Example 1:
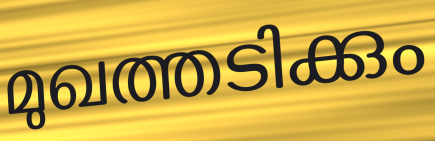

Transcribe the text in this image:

മുഖത്തടിക്കും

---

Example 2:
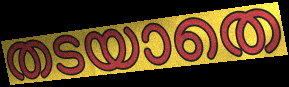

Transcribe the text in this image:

തടയാതെ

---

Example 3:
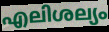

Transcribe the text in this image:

എലിശല്യം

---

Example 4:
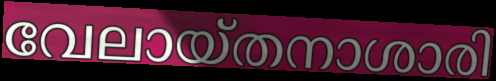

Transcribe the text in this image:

വേലായ്തനാശാരി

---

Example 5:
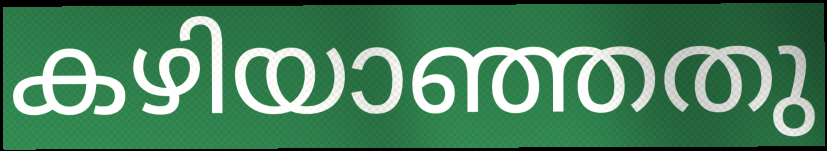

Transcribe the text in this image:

കഴിയാഞ്ഞതു